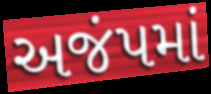
અજંપમાં